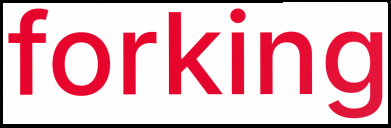
forking